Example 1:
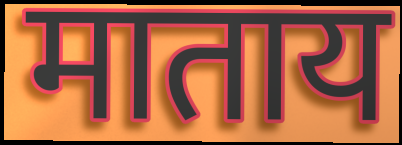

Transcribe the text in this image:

माताय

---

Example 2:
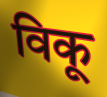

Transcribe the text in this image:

विकू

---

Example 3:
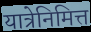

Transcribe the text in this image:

यात्रेनिमित्त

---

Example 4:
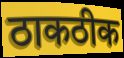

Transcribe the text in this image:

ठाकठीक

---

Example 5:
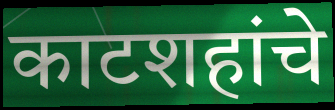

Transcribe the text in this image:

काटशहांचे